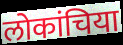
लोकांचिया